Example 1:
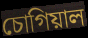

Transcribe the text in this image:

চোগিয়াল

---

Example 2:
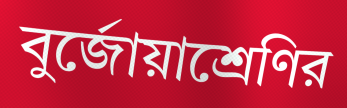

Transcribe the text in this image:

বুর্জোয়াশ্রেণির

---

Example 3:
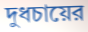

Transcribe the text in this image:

দুধচায়ের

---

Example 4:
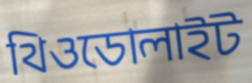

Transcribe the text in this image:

থিওডোলাইট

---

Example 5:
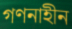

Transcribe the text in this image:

গণনাহীন